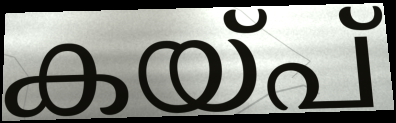
കയ്പ്